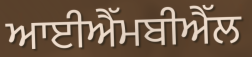
ਆਈਐੱਮਬੀਐੱਲ